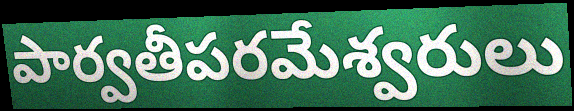
పార్వతీపరమేశ్వరులు